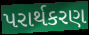
પરાર્થકરણ